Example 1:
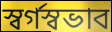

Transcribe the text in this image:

স্বর্গস্বভাব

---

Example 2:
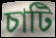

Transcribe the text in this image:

চাটি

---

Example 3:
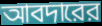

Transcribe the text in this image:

আবদারের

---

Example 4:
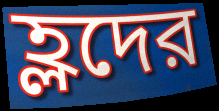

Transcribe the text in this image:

হ্লদের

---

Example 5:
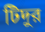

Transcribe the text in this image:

টিদুর